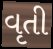
વૃતી